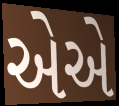
એએ